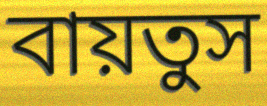
বায়তুস